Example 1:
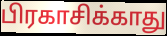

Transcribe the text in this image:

பிரகாசிக்காது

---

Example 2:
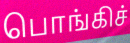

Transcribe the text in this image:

பொங்கிச்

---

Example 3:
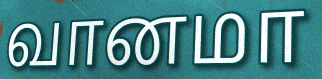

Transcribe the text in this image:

வானமா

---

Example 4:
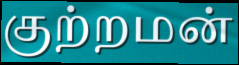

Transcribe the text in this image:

குற்றமன்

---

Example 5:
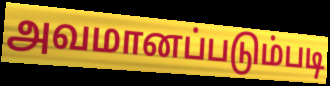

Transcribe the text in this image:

அவமானப்படும்படி